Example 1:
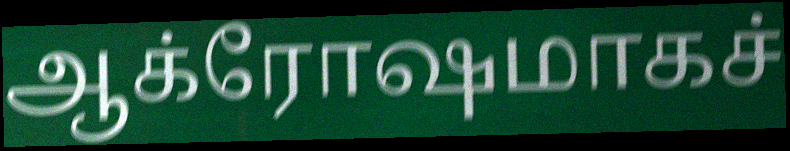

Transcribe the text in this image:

ஆக்ரோஷமாகச்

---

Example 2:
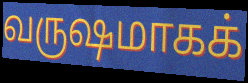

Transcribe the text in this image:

வருஷமாகக்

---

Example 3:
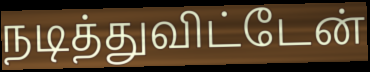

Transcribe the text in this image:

நடித்துவிட்டேன்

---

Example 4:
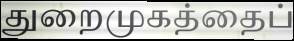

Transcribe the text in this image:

துறைமுகத்தைப்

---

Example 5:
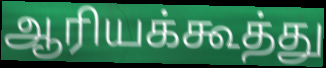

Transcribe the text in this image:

ஆரியக்கூத்து